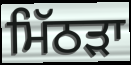
ਮਿੱਠੜਾ